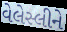
વેલેસ્લીને